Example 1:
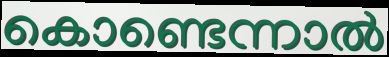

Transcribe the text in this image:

കൊണ്ടെന്നാൽ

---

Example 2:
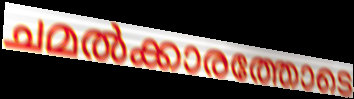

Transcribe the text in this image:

ചമൽക്കാരത്തോടെ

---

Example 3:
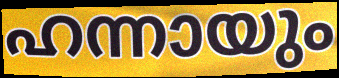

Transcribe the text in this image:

ഹന്നായും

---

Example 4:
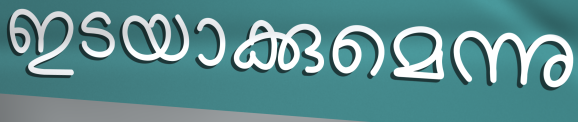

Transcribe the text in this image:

ഇടയാക്കുമെന്നു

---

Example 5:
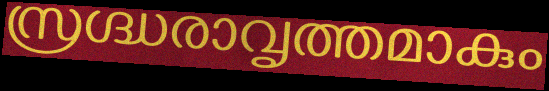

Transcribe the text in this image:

സ്രഗ്ദ്ധരാവൃത്തമാകും